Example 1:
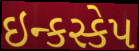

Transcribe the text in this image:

ઇન્કસ્કેપ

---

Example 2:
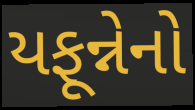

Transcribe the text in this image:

યફૂન્નેનો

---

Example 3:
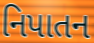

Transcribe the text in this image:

નિપાતન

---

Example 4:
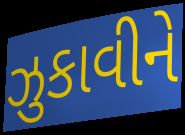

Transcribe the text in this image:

ઝુકાવીને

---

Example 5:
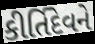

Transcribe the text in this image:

કીર્તિદેવને